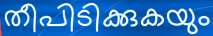
തീപിടിക്കുകയും